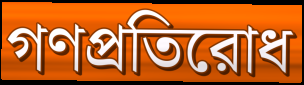
গণপ্রতিরোধ